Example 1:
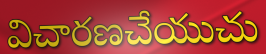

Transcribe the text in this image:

విచారణచేయుచు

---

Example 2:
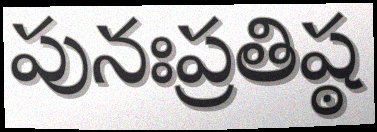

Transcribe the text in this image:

పునఃప్రతిష్ఠ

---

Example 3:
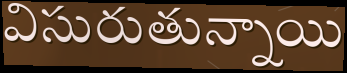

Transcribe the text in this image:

విసురుతున్నాయి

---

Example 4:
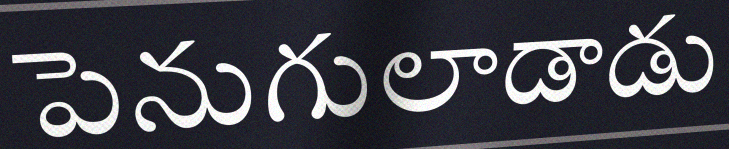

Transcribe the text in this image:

పెనుగులాడాడు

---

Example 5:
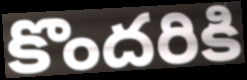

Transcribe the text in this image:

కొందరికి